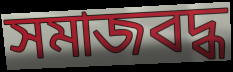
সমাজবদ্ধ